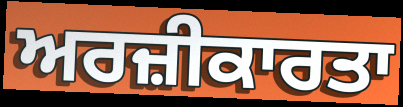
ਅਰਜ਼ੀਕਾਰਤਾ